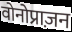
वोनोप्राज़न